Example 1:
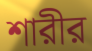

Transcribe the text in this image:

শারীর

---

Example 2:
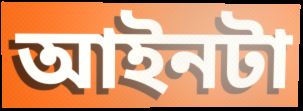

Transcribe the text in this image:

আইনটা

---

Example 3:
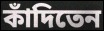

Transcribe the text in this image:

কাঁদিতেন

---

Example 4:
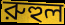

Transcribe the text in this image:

রুহুল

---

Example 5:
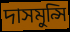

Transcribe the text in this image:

দাসমুন্সি